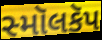
સ્મૉલકૅપ